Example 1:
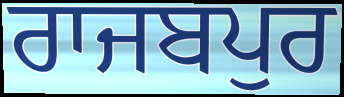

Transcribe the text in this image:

ਰਾਜਬਪੁਰ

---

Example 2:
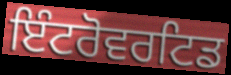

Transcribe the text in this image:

ਇੰਟਰੋਵਰਟਿਡ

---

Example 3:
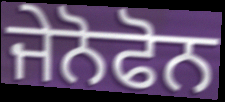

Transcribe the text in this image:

ਜੇਨੋਫੋਨ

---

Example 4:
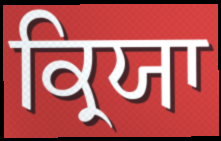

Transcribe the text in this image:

ਕ੍ਰਿਯਾ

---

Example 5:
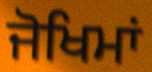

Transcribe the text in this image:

ਜੋਖਿਮਾਂ